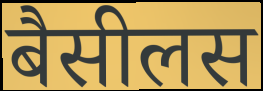
बैसीलस